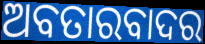
ଅବତାରବାଦର